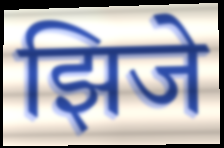
झिजे